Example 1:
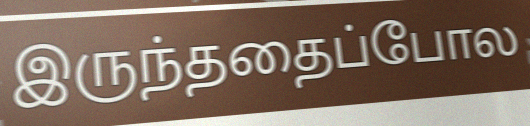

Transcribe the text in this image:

இருந்ததைப்போல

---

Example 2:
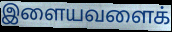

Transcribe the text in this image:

இளையவளைக்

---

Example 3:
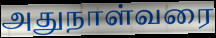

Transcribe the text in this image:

அதுநாள்வரை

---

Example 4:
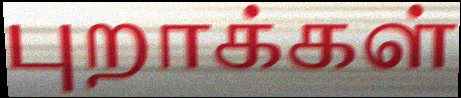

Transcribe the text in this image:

புறாக்கள்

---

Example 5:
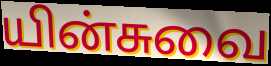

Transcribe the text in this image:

யின்சுவை